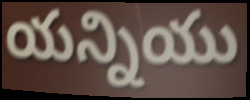
యన్నియు